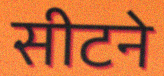
सीटने